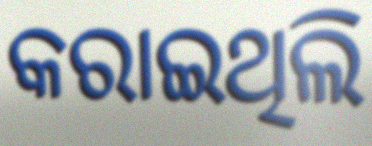
କରାଇଥିଲି